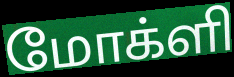
மோக்ளி